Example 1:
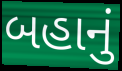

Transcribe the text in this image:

બહાનું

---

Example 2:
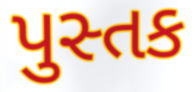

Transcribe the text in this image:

પુસ્તક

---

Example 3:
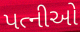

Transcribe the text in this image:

પત્નીઓ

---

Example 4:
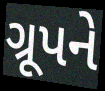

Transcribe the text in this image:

ગ્રૂપને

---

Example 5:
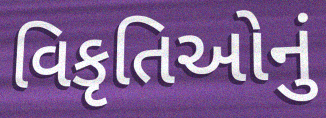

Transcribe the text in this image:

વિકૃતિઓનું